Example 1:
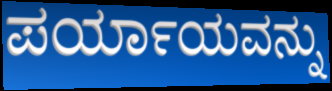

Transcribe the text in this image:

ಪರ್ಯಾಯವನ್ನು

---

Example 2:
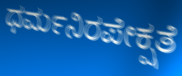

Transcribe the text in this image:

ಧರ್ಮನಿರಪೇಕ್ಷತೆ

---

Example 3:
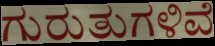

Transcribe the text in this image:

ಗುರುತುಗಳಿವೆ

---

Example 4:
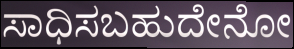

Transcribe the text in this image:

ಸಾಧಿಸಬಹುದೇನೋ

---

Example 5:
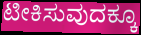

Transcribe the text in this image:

ಟೀಕಿಸುವುದಕ್ಕೂ